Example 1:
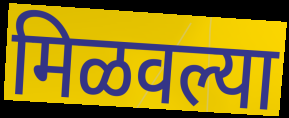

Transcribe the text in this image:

मिळवल्या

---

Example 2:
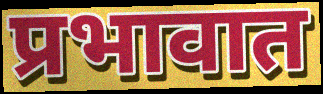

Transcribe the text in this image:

प्रभावात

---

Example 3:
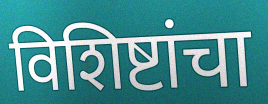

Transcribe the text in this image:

विशिष्टांचा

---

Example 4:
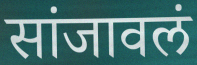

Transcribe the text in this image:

सांजावलं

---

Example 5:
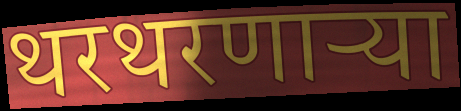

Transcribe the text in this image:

थरथरणाऱ्या